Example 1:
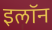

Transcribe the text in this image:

इलॉन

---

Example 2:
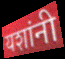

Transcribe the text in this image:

यशांनी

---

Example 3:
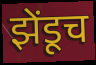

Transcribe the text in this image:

झेंडूच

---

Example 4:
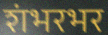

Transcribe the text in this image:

शंभरभर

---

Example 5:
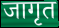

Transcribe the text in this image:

जागृत